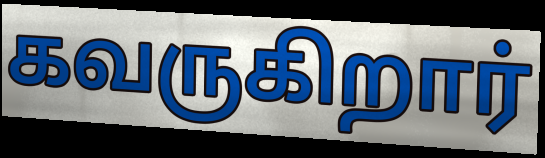
கவருகிறார்